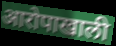
आरोपाखाली